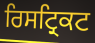
ਰਿਸਟ੍ਰਿਕਟ